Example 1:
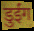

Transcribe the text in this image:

डुईंग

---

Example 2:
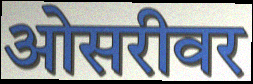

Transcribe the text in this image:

ओसरीवर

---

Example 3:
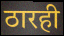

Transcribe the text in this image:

ठारही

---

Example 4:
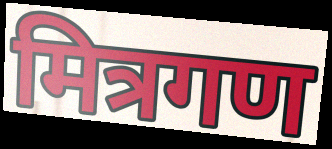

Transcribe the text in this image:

मित्रगण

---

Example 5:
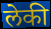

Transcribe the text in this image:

लेकी